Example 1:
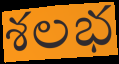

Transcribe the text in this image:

శలభ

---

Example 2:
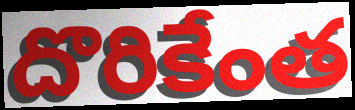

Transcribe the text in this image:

దొరికేంత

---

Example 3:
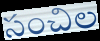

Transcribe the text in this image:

సంచిల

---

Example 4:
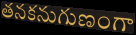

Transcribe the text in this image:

తనకనుగుణంగా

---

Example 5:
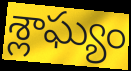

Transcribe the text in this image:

శ్లాఘ్యం